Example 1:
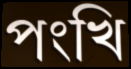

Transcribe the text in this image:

পংখি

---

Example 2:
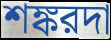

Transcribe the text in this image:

শঙ্করদা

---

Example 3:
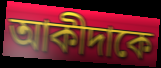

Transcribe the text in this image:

আকীদাকে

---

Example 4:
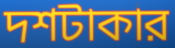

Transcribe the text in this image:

দশটাকার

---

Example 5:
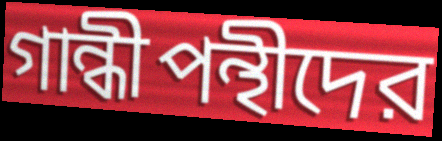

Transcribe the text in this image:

গান্ধীপন্থীদের